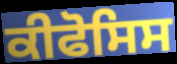
ਕੀਫੋਸਿਸ